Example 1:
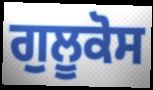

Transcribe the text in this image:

ਗੁਲੂਕੋਸ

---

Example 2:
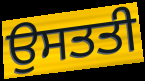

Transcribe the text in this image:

ਉਸਤਤੀ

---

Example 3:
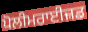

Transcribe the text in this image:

ਪੋਲੀਮਰਾਈਜ਼ਡ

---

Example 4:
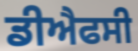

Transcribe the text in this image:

ਡੀਐਫਸੀ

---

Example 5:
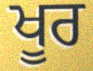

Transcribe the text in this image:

ਖੂਰ